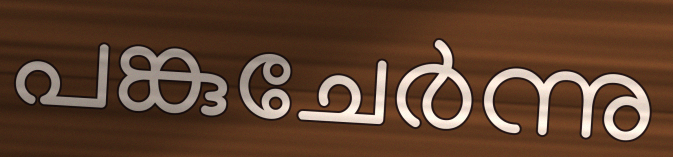
പങ്കുചേർന്നു